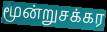
மூன்றுசக்கர